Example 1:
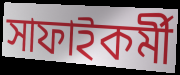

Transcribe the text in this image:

সাফাইকর্মী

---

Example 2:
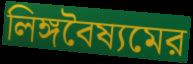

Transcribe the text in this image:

লিঙ্গবৈষ্যমের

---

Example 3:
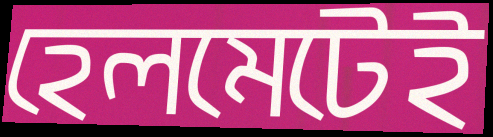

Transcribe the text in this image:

হেলমেটেই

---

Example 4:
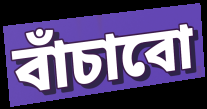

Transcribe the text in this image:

বাঁচাবো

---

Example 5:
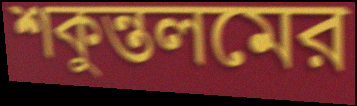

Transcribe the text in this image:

শকুন্তলমের